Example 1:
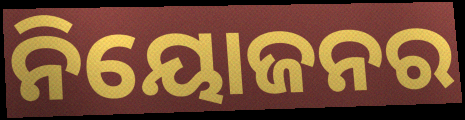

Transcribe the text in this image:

ନିୟୋଜନର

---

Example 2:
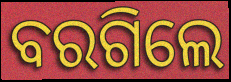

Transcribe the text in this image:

ବରଗିଲେ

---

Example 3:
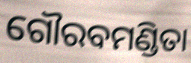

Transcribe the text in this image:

ଗୌରବମଣ୍ଡିତା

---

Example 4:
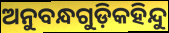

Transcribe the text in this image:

ଅନୁବନ୍ଧଗୁଡ଼ିକହିନ୍ଦୁ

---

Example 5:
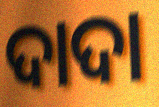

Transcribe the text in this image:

ଦାଦା